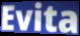
Evita